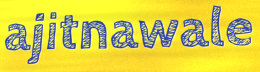
ajitnawale